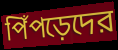
পিঁপড়েদের